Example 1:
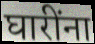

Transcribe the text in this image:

घारींना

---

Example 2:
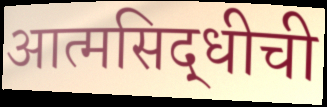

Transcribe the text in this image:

आत्मसिद्धीची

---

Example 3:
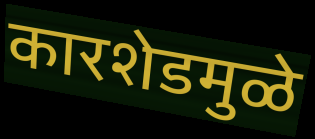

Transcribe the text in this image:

कारशेडमुळे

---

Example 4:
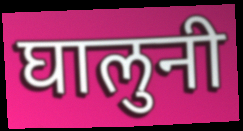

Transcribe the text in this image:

घालुनी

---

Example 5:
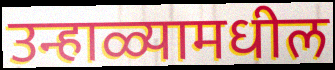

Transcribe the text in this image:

उन्हाळ्यामधील